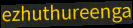
ezhuthureenga